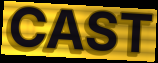
CAST